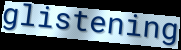
glistening